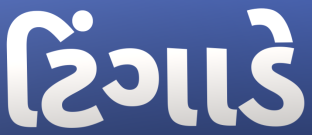
ટિંગાડે